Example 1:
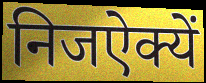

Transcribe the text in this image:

निजऐक्यें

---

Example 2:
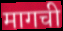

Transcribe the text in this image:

मागची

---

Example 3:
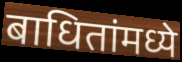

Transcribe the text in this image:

बाधितांमध्ये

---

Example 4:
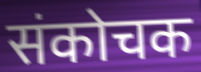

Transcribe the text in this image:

संकोचक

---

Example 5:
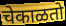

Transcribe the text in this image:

चेकाळतो